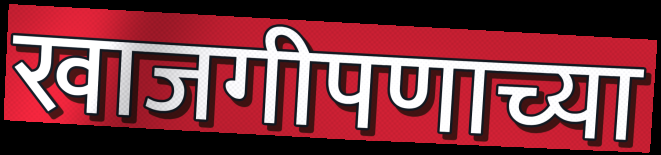
खाजगीपणाच्या